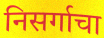
निसर्गाचा